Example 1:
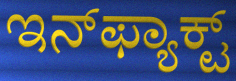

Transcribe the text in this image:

ಇನ್‌ಫ್ಯಾಕ್ಟ್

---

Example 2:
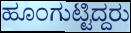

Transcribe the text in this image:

ಹೂಂಗುಟ್ಟಿದ್ದರು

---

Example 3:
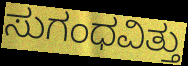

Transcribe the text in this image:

ಸುಗಂಧವಿತ್ತು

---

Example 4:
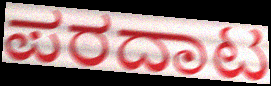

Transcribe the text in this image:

ಪರದಾಟ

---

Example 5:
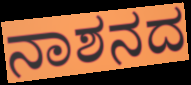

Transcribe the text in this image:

ನಾಶನದ